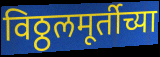
विठ्ठलमूर्तीच्या